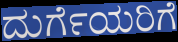
ದುರ್ಗೆಯರಿಗೆ